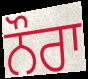
ਨੌਰਾ